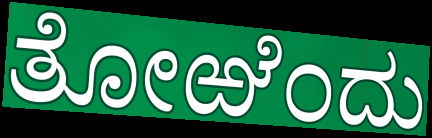
ತೋಱೆಂದು